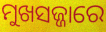
ମୁଖସଜ୍ଜାରେ